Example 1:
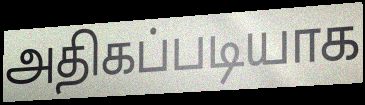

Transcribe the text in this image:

அதிகப்படியாக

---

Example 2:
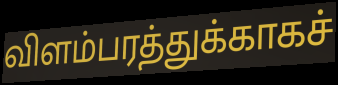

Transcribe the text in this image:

விளம்பரத்துக்காகச்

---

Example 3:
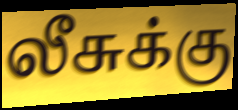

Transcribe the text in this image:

லீசுக்கு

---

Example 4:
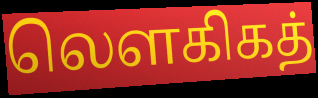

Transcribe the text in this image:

லௌகிகத்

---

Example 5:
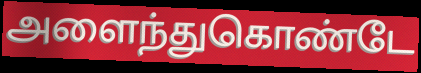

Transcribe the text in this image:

அளைந்துகொண்டே